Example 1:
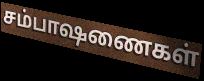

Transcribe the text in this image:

சம்பாஷணைகள்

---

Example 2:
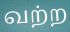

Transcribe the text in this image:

வற்ற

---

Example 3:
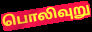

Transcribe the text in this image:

பொலிவுறு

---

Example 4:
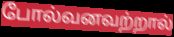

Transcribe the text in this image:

போல்வனவற்றால்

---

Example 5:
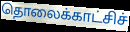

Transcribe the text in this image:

தொலைக்காட்சிச்